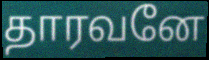
தாரவனே